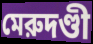
মেরুদণ্ডী